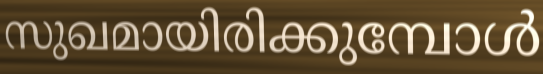
സുഖമായിരിക്കുമ്പോൾ